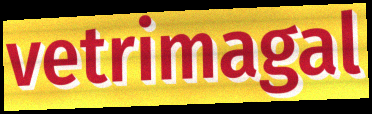
vetrimagal